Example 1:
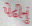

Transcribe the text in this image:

પેઢીનું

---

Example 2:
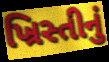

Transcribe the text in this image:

ખ્રિસ્તીનું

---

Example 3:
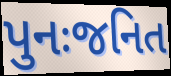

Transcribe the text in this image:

પુનઃજનિત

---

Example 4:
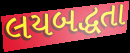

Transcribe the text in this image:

લયબદ્ધતા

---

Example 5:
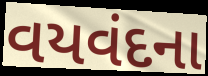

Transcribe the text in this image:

વયવંદના